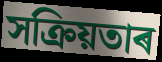
সক্ৰিয়তাৰ